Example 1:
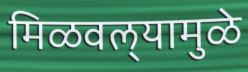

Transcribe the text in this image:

मिळवल्यामुळे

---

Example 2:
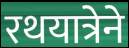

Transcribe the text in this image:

रथयात्रेने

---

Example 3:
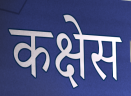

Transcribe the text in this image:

कक्षेस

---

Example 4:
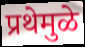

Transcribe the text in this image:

प्रथेमुळे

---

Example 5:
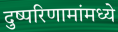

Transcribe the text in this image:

दुष्परिणामांमध्ये